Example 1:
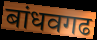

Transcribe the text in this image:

बांधवगढ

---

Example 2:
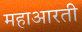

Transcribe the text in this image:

महाआरती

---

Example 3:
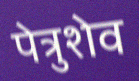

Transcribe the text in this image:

पेत्रुशेव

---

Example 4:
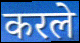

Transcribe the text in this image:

करले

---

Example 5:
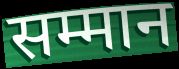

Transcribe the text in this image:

सम्‍मान